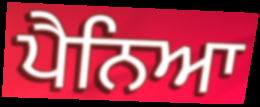
ਪੈਨਿਆ